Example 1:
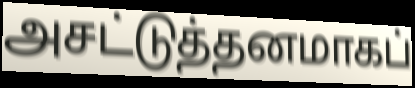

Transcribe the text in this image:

அசட்டுத்தனமாகப்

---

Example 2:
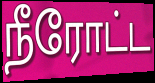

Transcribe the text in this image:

நீரோட்ட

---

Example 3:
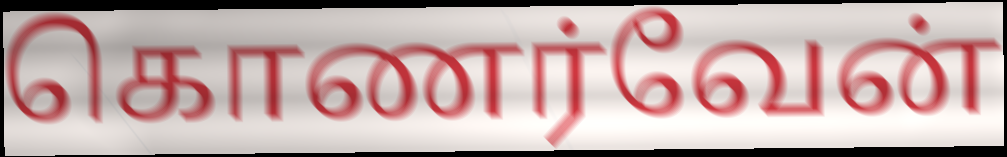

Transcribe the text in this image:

கொணர்வேன்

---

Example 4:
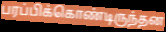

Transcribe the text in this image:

பரப்பிக்கொண்டிருந்தன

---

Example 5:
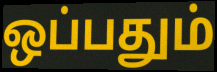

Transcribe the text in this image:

ஒப்பதும்